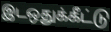
இடஒதுக்கீட்டு